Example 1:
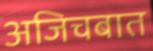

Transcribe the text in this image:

अजिचबात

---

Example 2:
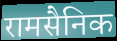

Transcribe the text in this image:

रामसैनिक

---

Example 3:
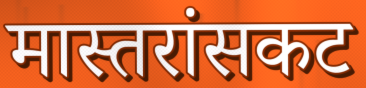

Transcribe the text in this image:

मास्तरांसकट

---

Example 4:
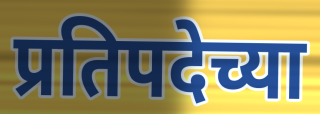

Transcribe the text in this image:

प्रतिपदेच्या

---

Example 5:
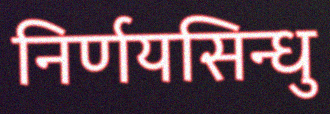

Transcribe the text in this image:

निर्णयसिन्धु